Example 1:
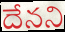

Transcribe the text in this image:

దేనని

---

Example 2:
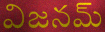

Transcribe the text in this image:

విజనమ్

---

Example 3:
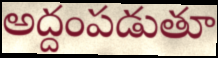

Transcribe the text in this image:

అద్దంపడుతూ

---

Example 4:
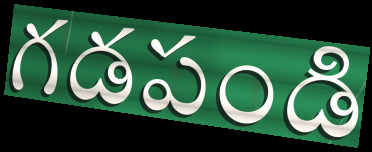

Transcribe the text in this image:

గడపండి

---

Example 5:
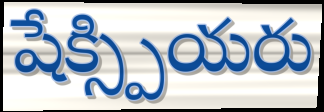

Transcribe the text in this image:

షేక్స్పియరు